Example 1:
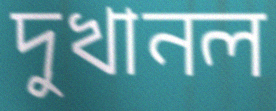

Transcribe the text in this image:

দুখানল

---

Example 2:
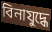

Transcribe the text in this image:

বিনাযুদ্ধে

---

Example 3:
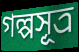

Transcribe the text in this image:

গল্পসূত্র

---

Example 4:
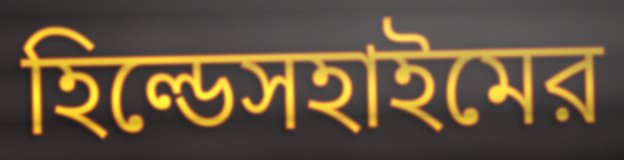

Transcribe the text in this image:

হিল্ডেসহাইমের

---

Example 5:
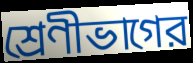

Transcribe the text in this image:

শ্রেণীভাগের